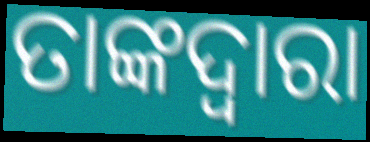
ତାଙ୍କଦ୍ଵାରା